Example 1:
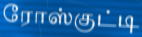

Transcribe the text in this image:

ரோஸ்குட்டி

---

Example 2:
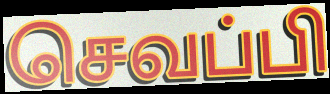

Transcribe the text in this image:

செவப்பி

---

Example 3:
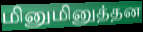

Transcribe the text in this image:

மினுமினுத்தன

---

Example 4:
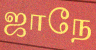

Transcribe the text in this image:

ஜாநே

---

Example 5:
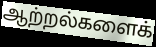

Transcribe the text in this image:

ஆற்றல்களைக்